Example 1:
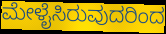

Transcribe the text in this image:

ಮೇಳೈಸಿರುವುದರಿಂದ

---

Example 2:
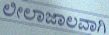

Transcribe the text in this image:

ಲೀಲಾಜಾಲವಾಗಿ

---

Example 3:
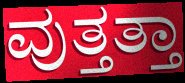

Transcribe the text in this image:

ವುತ್ತತ್ತಾ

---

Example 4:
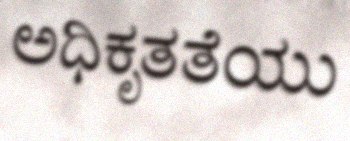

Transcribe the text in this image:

ಅಧಿಕೃತತೆಯು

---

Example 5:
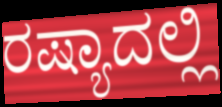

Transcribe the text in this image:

ರಷ್ಯಾದಲ್ಲಿ